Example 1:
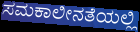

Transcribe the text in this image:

ಸಮಕಾಲೀನತೆಯಲ್ಲಿ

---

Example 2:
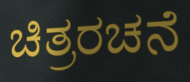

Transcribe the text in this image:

ಚಿತ್ರರಚನೆ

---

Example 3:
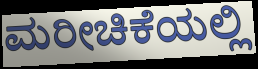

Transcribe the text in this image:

ಮರೀಚಿಕೆಯಲ್ಲಿ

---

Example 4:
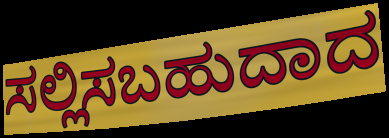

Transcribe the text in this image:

ಸಲ್ಲಿಸಬಹುದಾದ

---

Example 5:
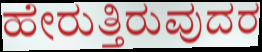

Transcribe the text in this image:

ಹೇರುತ್ತಿರುವುದರ